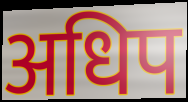
अधिप